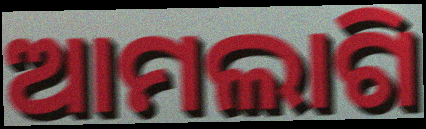
ଆମଲାଗି